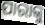
ପାରାକୁ